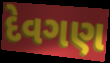
દેવગણ